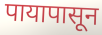
पायापासून